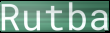
Rutba